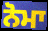
ਨੋਮਾ